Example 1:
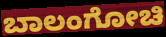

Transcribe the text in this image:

ಬಾಲಂಗೋಚಿ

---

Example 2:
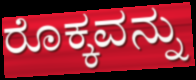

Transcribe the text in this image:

ರೊಕ್ಕವನ್ನು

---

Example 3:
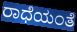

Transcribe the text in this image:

ರಾಧೆಯಂತೆ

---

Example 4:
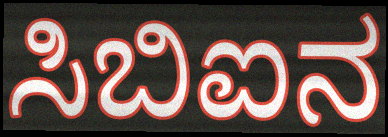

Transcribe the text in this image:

ಸಿಬಿಐನ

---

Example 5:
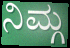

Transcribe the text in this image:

ನಿಮ್ಗ